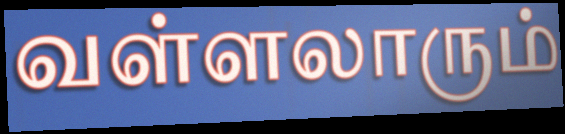
வள்ளலாரும்